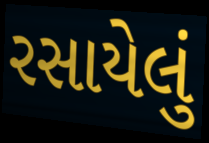
રસાયેલું